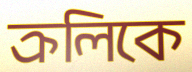
ক্রলিকে